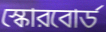
স্কোরবোর্ড